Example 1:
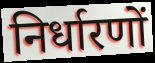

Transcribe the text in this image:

निर्धारणों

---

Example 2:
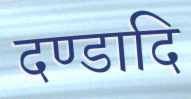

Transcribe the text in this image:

दण्डादि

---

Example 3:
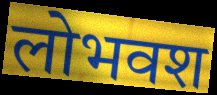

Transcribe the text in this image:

लोभवश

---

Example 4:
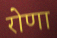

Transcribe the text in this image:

रोणा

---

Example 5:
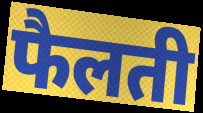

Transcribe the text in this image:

फैलती